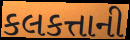
કલકત્તાની